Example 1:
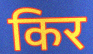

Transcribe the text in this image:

किर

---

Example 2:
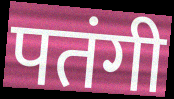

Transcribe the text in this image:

पतंगी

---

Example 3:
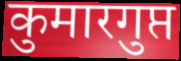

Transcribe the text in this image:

कुमारगुप्त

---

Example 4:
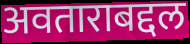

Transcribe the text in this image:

अवताराबद्दल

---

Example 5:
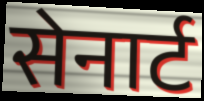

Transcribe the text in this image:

सेनार्ट